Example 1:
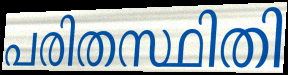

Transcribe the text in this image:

പരിതസ്ഥിതി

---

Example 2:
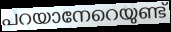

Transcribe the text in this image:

പറയാനേറെയുണ്ട്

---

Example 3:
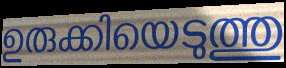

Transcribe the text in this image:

ഉരുക്കിയെടുത്തു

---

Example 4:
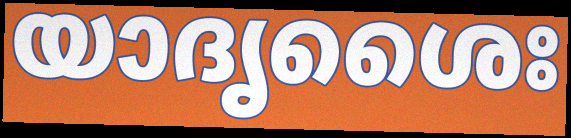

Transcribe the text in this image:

യാദൃശൈഃ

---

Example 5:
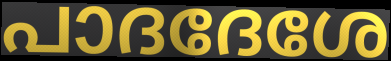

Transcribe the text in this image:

പാദദേശേ